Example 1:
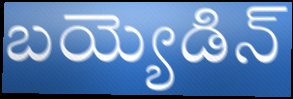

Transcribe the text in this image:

బయ్యెడిన్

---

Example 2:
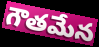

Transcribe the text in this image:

గౌతమేన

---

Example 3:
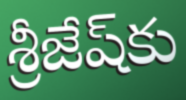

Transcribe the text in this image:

శ్రీజేష్‌కు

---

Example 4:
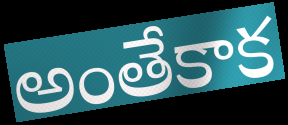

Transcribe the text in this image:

అంతేకాక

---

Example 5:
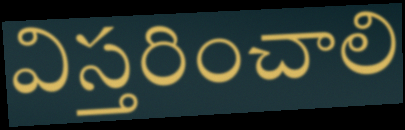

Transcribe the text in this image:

విస్తరించాలి